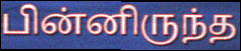
பின்னிருந்த